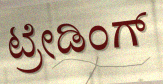
ಟ್ರೇಡಿಂಗ್